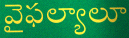
వైఫల్యాలూ